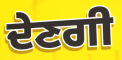
ਦੇਣਗੀ